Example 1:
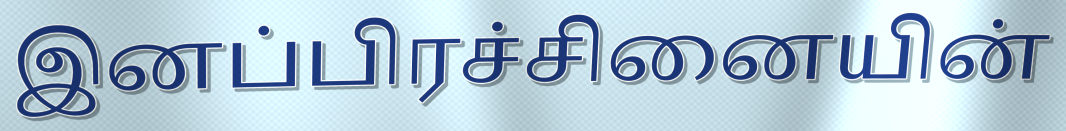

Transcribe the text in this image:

இனப்பிரச்சினையின்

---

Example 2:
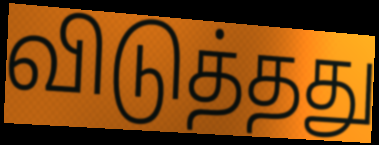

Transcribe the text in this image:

விடுத்தது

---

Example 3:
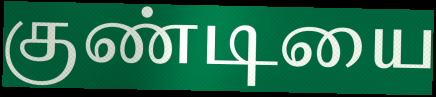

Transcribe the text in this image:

குண்டியை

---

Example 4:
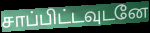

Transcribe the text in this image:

சாப்பிட்டவுடனே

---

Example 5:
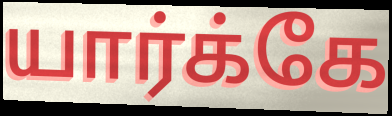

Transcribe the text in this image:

யார்க்கே